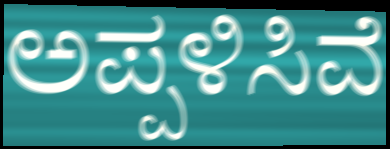
ಅಪ್ಪಳಿಸಿವೆ